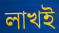
লাখই